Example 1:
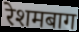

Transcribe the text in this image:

रेशमबाग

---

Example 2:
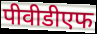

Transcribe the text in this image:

पीवीडीएफ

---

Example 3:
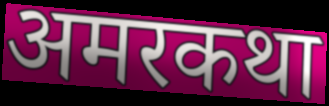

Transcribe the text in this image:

अमरकथा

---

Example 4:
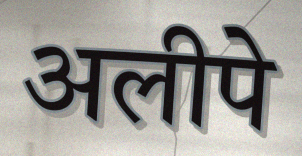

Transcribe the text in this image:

अलीपे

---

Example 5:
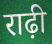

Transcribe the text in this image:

राढ़ी